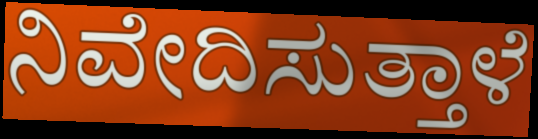
ನಿವೇದಿಸುತ್ತಾಳೆ